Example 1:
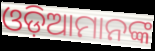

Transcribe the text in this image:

ଓଡ଼ିଆମାନଙ୍କ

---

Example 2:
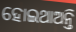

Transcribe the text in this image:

ହୋଇଥାଅନ୍ତି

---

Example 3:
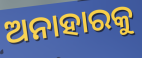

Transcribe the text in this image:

ଅନାହାରକୁ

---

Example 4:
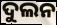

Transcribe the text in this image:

ଦୁଲନ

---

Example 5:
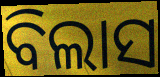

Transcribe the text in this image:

ବିଲାସ